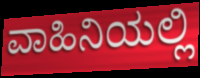
ವಾಹಿನಿಯಲ್ಲಿ